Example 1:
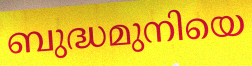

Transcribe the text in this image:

ബുദ്ധമുനിയെ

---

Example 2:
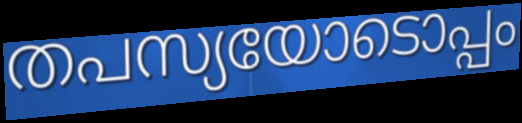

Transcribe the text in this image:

തപസ്യയോടൊപ്പം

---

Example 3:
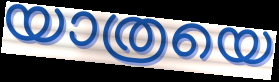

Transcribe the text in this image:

യാത്രയെ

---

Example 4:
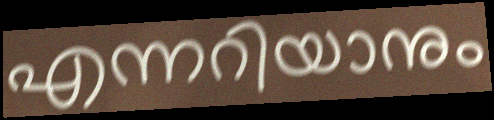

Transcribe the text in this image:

എന്നറിയാനും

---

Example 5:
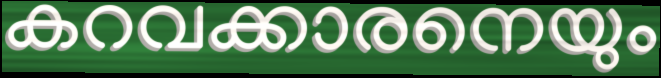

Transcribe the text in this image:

കറവക്കാരനെയും